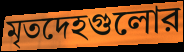
মৃতদেহগুলোর